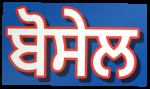
ਬੋਸੇਲ